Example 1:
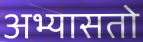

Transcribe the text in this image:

अभ्यासतो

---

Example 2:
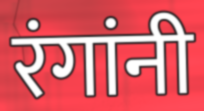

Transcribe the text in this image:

रंगांनी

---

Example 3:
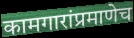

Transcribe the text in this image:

कामगारांप्रमाणेच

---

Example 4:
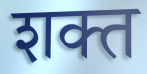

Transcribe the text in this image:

शक्त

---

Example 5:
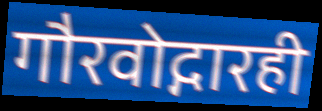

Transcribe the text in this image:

गौरवोद्गारही